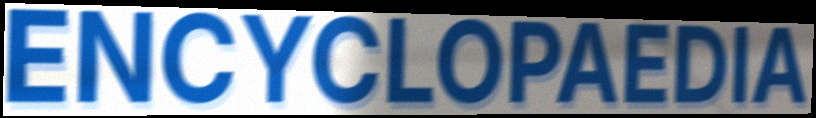
ENCYCLOPAEDIA